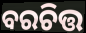
ବରଚିତ୍ତ